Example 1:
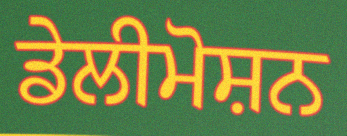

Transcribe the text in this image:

ਡੇਲੀਮੋਸ਼ਨ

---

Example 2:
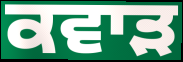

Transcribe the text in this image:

ਕਵਾੜ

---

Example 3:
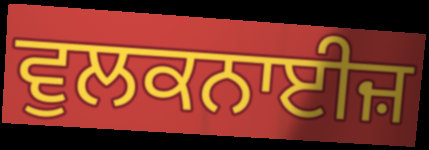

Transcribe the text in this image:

ਵੁਲਕਨਾਈਜ਼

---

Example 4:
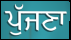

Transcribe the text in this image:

ਪੁੱਜਣਾ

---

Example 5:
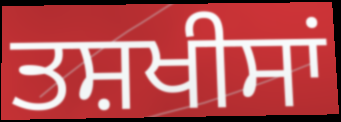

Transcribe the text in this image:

ਤਸ਼ਖੀਸਾਂ